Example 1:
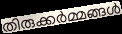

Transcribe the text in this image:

തിരുക്കർമ്മങ്ങൾ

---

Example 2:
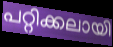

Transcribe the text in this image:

പറ്റിക്കലായി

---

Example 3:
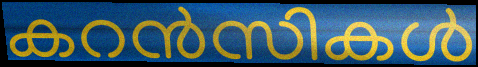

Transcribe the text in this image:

കറൻസികൾ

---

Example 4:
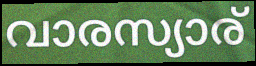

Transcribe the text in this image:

വാരസ്യാര്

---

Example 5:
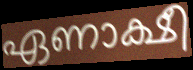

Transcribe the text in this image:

ഏണാക്ഷീ